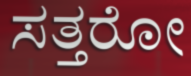
ಸತ್ತರೋ